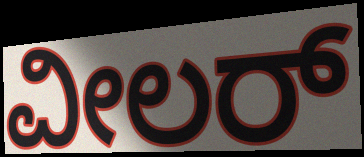
ವೀಲರ್